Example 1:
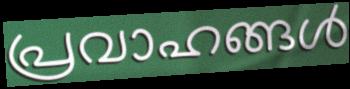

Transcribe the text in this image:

പ്രവാഹങ്ങൾ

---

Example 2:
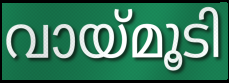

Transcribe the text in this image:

വായ്മൂടി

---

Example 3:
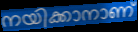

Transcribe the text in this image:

നയിക്കാനാണ്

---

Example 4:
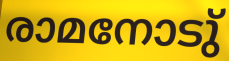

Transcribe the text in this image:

രാമനോടു്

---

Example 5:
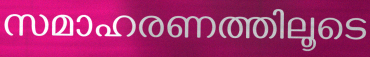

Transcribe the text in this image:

സമാഹരണത്തിലൂടെ